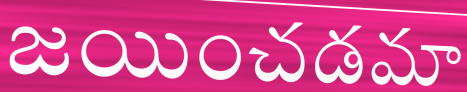
జయించడమా